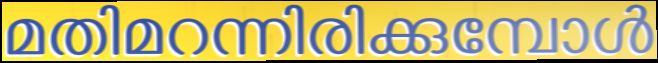
മതിമറന്നിരിക്കുമ്പോൾ